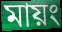
মায়ং